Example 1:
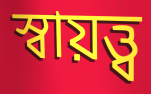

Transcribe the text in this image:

স্বায়ত্ত্ব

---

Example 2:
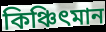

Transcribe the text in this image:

কিঞ্চিৎমান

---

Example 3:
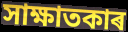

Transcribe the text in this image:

সাক্ষাতকাৰ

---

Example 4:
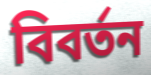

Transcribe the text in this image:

বিবৰ্তন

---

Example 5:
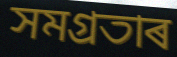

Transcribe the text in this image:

সমগ্ৰতাৰ